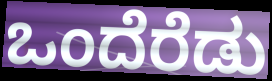
ಒಂದೆರೆಡು